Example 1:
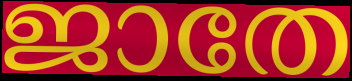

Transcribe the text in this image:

ജാതേ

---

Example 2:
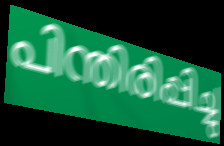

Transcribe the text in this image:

പിന്തിരിപ്പിച്ചു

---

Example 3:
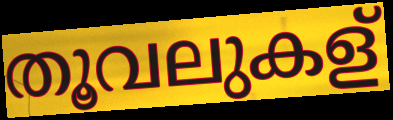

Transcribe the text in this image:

തൂവലുകള്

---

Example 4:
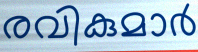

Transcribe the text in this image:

രവികുമാർ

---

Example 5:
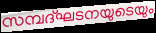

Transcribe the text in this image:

സമ്പദ്ഘടനയുടെയും